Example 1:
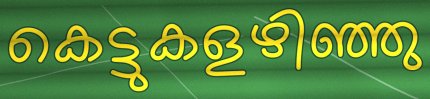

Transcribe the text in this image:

കെട്ടുകളഴിഞ്ഞു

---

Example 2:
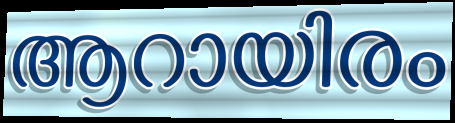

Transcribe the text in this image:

ആറായിരം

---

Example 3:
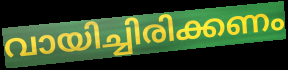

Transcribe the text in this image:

വായിച്ചിരിക്കണം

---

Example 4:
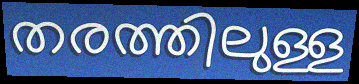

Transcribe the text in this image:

തരത്തിലുള്ള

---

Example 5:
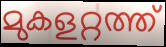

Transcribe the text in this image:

മുകളറ്റത്ത്